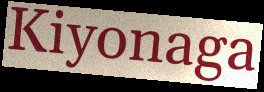
Kiyonaga